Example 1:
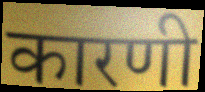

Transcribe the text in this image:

कारणी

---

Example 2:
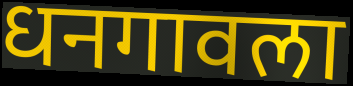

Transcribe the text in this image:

धनगावला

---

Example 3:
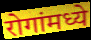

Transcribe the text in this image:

रोगांमध्ये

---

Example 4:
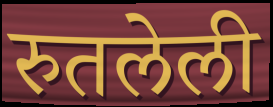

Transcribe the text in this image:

रुतलेली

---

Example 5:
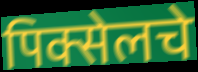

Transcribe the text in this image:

पिक्सेलचे